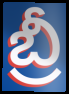
బ్రీ